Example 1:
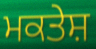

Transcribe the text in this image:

ਮਕਤੇਸ਼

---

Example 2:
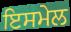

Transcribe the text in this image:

ਇਸਮੇਲ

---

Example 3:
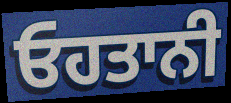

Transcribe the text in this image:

ਓਹਤਾਨੀ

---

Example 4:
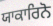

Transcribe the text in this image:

ਯਾਕਾਰਿਨੋ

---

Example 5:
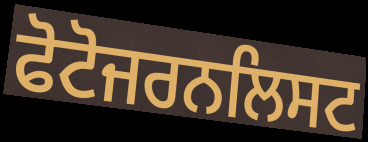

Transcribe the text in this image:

ਫੋਟੋਜਰਨਲਿਸਟ